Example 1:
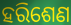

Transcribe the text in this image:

ହରିଶେଣ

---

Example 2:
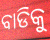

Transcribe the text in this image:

ବାଡିକୁ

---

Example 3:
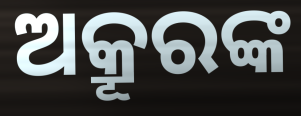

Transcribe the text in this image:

ଅକ୍ରୂରଙ୍କ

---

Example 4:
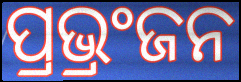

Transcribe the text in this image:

ପ୍ରଭ୍ରଂଜନ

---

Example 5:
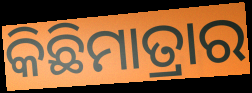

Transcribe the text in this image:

କିଛିମାତ୍ରାର